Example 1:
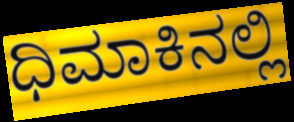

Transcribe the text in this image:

ಧಿಮಾಕಿನಲ್ಲಿ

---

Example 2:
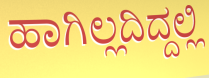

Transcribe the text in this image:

ಹಾಗಿಲ್ಲದಿದ್ದಲ್ಲಿ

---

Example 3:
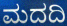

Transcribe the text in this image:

ಮದದಿ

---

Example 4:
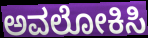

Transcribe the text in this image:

ಅವಲೋಕಿಸಿ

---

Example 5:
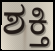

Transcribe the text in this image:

ಶಕ್ತಿ